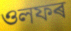
ওলফৰ